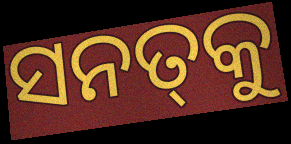
ସନତ୍‍କୁ